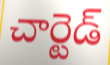
చార్టెడ్